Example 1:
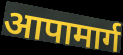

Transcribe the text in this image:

आपामार्ग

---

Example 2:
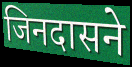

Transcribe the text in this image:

जिनदासने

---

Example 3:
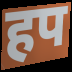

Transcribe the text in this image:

हप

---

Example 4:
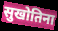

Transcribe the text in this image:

सुखोतिना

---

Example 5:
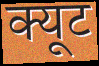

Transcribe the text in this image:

क्यूट